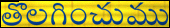
తొలగించుము